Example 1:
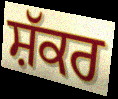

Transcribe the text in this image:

ਸ਼ੱਕਰ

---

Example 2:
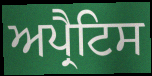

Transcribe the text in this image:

ਅਪ੍ਰੈਟਿਸ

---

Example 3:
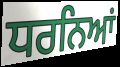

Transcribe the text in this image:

ਧਰਨਿਆਂ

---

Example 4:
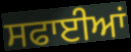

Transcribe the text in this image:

ਸਫਾਈਆਂ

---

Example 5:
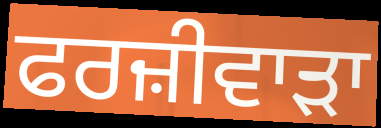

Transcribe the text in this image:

ਫਰਜ਼ੀਵਾੜਾ